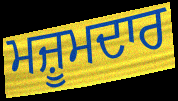
ਮਜ਼ੂਮਦਾਰ